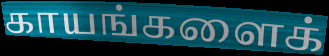
காயங்களைக்